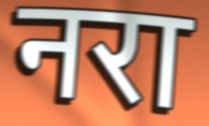
नरा